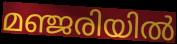
മഞ്ജരിയിൽ